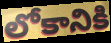
లోకానికి